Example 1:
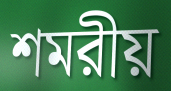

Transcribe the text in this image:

শমরীয়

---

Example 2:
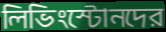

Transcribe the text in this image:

লিভিংস্টোনদের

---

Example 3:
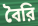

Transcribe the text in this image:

বৈরি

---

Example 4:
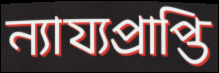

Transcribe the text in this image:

ন্যায্যপ্রাপ্তি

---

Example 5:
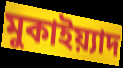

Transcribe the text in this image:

মুকাইয়্যাদ